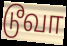
டூவா